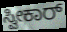
ಸ್ವೀಕಾರ್